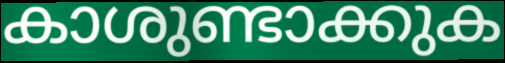
കാശുണ്ടാക്കുക